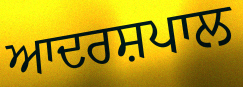
ਆਦਰਸ਼ਪਾਲ